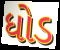
ધોડ